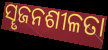
ସୄଜନଶୀଳତା